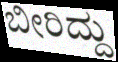
ಬೀರಿದ್ದು